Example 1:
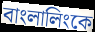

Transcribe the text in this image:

বাংলালিংকে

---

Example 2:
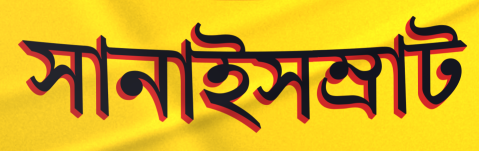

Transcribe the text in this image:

সানাইসম্রাট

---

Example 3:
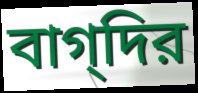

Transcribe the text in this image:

বাগ্‌দির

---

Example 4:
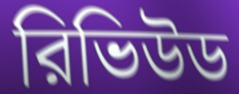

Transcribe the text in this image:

রিভিউড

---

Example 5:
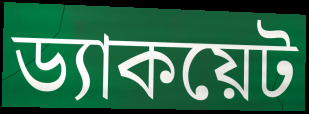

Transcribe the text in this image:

ড্যাকয়েট